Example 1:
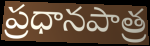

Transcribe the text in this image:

ప్రధానపాత్ర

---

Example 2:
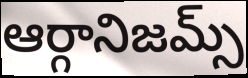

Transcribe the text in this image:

ఆర్గానిజమ్స్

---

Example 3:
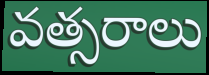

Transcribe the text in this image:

వత్సరాలు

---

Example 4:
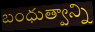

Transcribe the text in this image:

బంధుత్వాన్ని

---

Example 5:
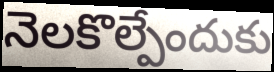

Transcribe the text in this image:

నెలకొల్పేందుకు